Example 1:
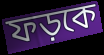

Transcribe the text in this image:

ফড়কে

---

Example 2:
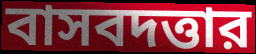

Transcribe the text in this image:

বাসবদত্তার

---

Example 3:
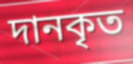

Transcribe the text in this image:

দানকৃত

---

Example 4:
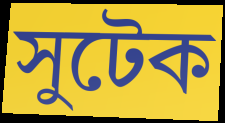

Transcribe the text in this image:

সুটেক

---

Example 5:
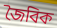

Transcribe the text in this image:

জৈবিক